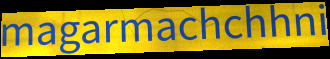
magarmachchhni